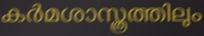
കർമശാസ്ത്രത്തിലും